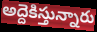
అద్దెకిస్తున్నారు